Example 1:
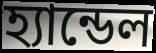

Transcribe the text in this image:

হ্যান্ডেল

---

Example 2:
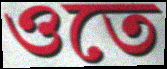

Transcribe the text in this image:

ওতে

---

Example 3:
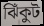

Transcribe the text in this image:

ঝিঁকুট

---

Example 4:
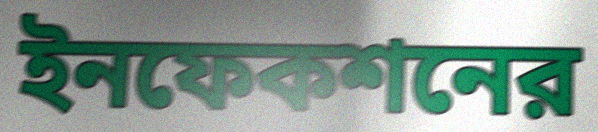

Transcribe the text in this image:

ইনফেকশনের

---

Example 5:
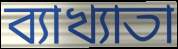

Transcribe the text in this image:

ব্যাখ্যাতা